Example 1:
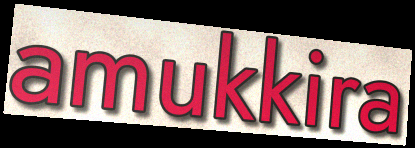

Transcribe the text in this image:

amukkira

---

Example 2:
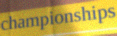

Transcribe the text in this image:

championships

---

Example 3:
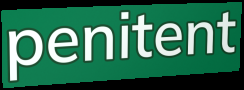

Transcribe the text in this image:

penitent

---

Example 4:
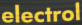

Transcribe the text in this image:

electrol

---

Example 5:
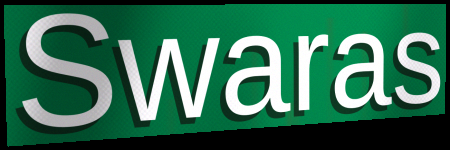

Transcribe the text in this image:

Swaras